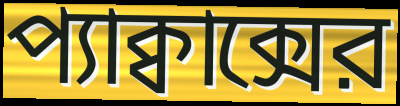
প্যাক্বাক্সের